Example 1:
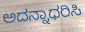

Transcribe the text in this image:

ಅದನ್ನಾಧರಿಸಿ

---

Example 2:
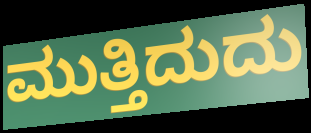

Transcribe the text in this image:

ಮುತ್ತಿದುದು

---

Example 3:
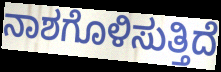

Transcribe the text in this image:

ನಾಶಗೊಳಿಸುತ್ತಿದೆ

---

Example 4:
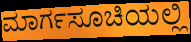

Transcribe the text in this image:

ಮಾರ್ಗಸೂಚಿಯಲ್ಲಿ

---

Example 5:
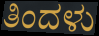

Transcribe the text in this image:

ತಿಂದಳು